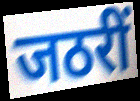
जठरीं